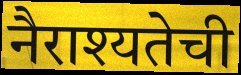
नैराश्यतेची